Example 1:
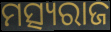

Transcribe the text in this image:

ମତ୍ସ୍ୟରାଜ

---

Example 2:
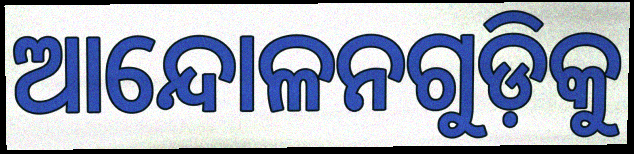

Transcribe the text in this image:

ଆନ୍ଦୋଳନଗୁଡ଼ିକୁ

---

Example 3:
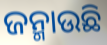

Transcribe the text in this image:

ଜନ୍ମାଉଛି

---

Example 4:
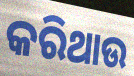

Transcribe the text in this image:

କରିଥାଉ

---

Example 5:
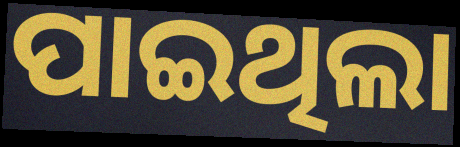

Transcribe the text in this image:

ପାଇଥିଲା